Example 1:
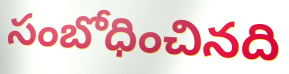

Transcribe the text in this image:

సంబోధించినది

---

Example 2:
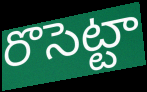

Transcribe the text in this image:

రొసెట్టా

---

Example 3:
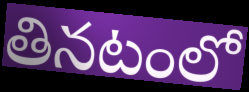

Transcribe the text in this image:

తినటంలో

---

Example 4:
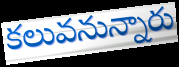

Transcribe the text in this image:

కలువనున్నారు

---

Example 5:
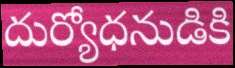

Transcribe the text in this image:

దుర్యోధనుడికి